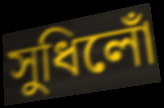
সুধিলোঁ